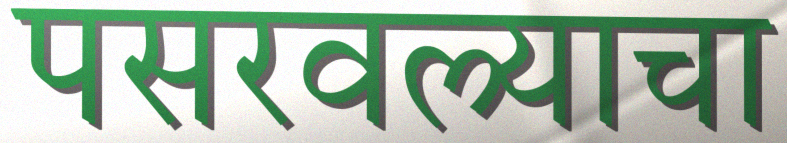
पसरवल्याचा